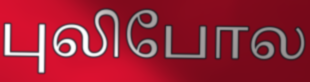
புலிபோல